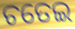
ଚତେଇ